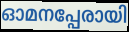
ഓമനപ്പേരായി